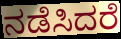
ನಡೆಸಿದರೆ